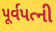
પૂર્વપત્ની